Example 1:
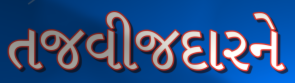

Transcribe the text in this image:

તજવીજદારને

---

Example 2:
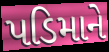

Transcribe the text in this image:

પડિમાને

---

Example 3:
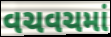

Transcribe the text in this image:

વચવચમાં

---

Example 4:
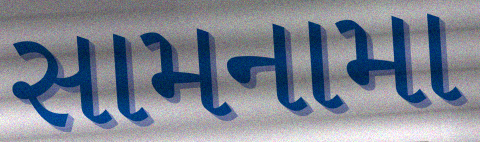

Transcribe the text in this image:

સામનામા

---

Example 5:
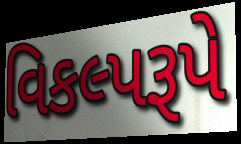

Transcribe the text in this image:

વિકલ્પરૂપે